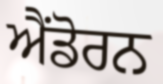
ਐਂਡੋਰਨ